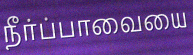
நீர்ப்பாவையை